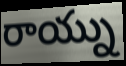
రాయ్ను